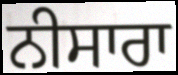
ਨੀਸਾਰਾ